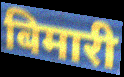
बिमारी